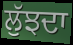
ਲੁੱਝਦਾ